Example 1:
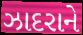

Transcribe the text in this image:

ઝાદરાને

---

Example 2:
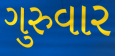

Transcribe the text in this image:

ગુરુવાર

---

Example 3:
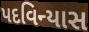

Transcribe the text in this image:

પદવિન્યાસ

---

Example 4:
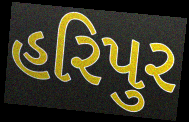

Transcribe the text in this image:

હરિપુર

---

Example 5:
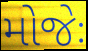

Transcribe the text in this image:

મોજેઃ